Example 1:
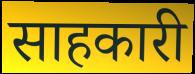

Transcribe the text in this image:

साहकारी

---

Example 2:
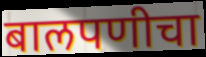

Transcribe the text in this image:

बालपणीचा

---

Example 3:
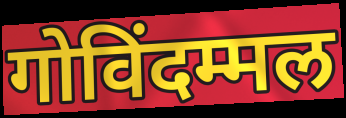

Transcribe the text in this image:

गोविंदम्मल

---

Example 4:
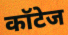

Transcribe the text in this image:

कॉटेज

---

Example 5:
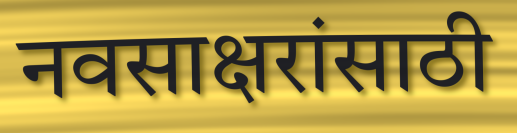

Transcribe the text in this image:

नवसाक्षरांसाठी